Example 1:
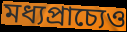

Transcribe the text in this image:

মধ্যপ্রাচ্যেও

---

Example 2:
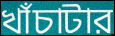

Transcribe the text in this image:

খাঁচাটার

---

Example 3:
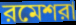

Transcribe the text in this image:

রমেশরা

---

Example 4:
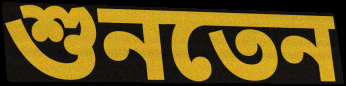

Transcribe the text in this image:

শুনতেন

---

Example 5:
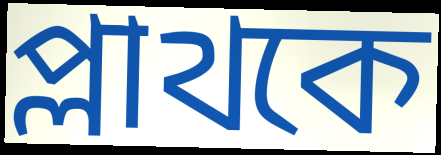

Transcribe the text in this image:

প্লাথকে